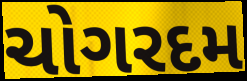
ચોગરદમ